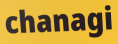
chanagi